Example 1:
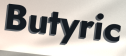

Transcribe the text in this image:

Butyric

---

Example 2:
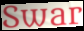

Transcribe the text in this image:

Swar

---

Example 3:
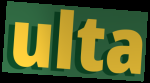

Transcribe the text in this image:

ulta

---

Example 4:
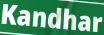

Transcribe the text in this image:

Kandhar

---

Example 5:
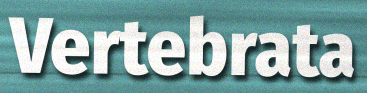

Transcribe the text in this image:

Vertebrata